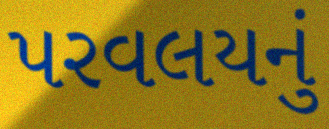
પરવલયનું